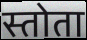
स्तोता